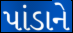
પાંડાને